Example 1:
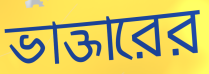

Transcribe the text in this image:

ভাক্তারের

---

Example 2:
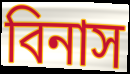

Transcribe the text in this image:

বিনাস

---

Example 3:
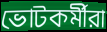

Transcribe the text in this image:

ভোটকর্মীরা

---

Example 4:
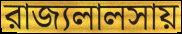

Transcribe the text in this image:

রাজ্যলালসায়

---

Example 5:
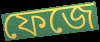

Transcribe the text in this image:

ফেজে